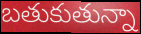
బతుకుతున్నా